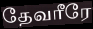
தேவரீரே